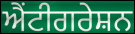
ਐਂਟੀਗਰੇਸ਼ਨ